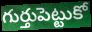
గుర్తుపెట్టుకో